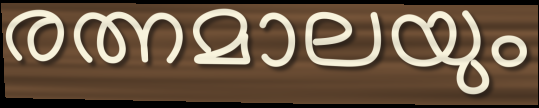
രത്നമാലയും